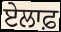
ਏਲਾਫ਼